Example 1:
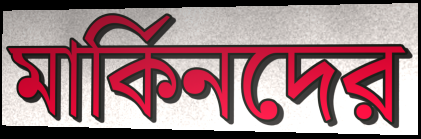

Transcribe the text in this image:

মার্কিনদের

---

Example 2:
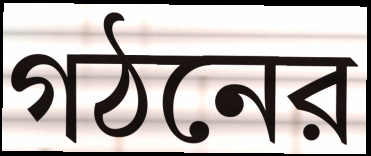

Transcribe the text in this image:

গঠনের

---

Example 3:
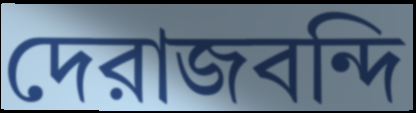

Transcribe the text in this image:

দেরাজবন্দি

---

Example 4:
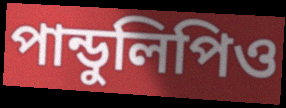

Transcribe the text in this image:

পান্ডুলিপিও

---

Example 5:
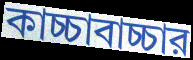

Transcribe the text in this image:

কাচ্চাবাচ্চার